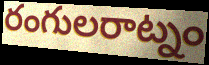
రంగులరాట్నం